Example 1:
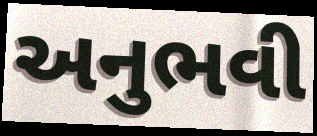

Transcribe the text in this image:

અનુભવી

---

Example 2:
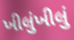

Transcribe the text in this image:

ખીલુંખીલું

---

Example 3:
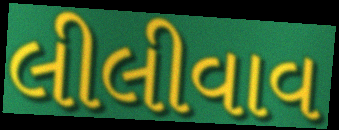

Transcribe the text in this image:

લીલીવાવ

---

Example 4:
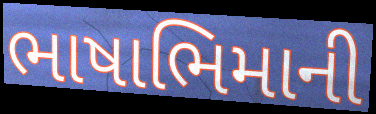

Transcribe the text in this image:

ભાષાભિમાની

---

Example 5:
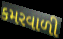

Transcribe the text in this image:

કમરવાળી